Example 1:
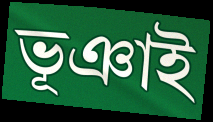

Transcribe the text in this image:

ভূঞাই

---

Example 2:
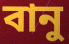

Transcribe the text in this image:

বানু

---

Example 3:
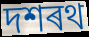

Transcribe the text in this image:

দশৰথ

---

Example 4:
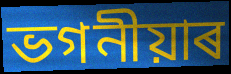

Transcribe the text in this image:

ভগনীয়াৰ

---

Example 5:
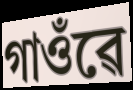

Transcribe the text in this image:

গাওঁৱে